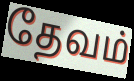
தேவம்